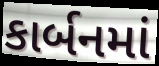
કાર્બનમાં